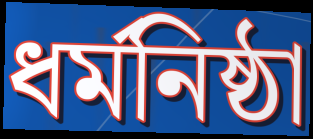
ধর্মনিষ্ঠা